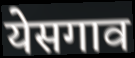
येसगाव